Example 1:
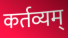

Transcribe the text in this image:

कर्तव्यम्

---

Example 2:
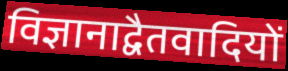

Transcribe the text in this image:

विज्ञानाद्वैतवादियों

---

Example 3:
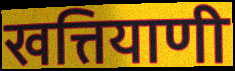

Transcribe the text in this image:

खत्तियाणी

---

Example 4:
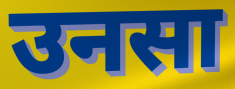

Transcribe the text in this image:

उनसा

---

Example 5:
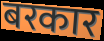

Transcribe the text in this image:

बरकार